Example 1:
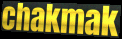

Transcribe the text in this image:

chakmak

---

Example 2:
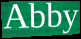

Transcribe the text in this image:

Abby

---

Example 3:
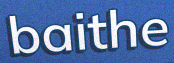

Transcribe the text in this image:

baithe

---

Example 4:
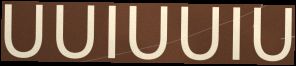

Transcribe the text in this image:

UUIUUIU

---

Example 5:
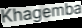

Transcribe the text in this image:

Khagemba